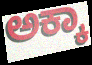
ಅಕ್ಕಾ